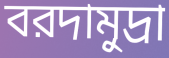
বরদামুদ্রা